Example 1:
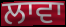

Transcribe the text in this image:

ਲਾਵਾ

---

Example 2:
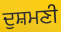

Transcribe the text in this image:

ਦੁਸ਼ਮਣੀ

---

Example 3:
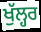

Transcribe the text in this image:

ਖੁੱਲ੍ਹਰ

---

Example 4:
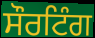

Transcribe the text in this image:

ਸੌਰਟਿੰਗ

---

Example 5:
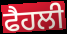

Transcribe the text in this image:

ਫੈਹਲੀ